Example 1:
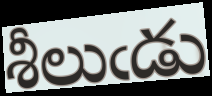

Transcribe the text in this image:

శీలుఁడు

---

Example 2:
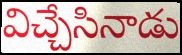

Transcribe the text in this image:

విచ్చేసినాడు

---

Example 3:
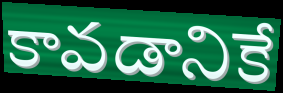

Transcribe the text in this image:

కావడానికే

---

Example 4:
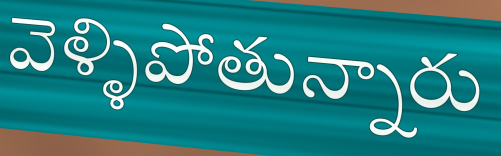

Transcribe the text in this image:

వెళ్ళిపోతున్నారు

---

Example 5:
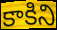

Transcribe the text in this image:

కాకిని